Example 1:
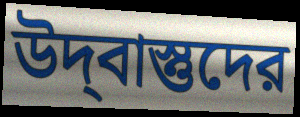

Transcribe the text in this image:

উদ্‌বাস্তুদের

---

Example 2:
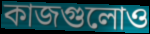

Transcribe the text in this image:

কাজগুলোও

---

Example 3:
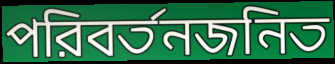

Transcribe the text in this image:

পরিবর্তনজনিত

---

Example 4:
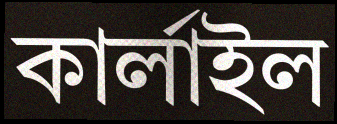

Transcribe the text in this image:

কার্লাইল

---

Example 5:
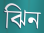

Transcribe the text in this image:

ঝিন